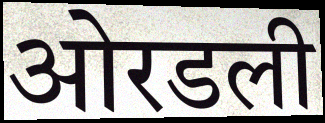
ओरडली